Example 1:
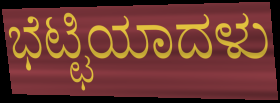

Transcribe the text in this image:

ಭೆಟ್ಟಿಯಾದಳು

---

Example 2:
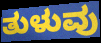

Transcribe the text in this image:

ತುಳುವು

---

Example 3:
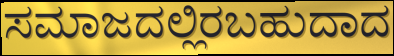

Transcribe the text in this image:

ಸಮಾಜದಲ್ಲಿರಬಹುದಾದ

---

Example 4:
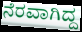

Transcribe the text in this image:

ನೆರವಾಗಿದ್ದ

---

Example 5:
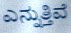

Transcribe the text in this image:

ಎನ್ನುತ್ತಿವೆ